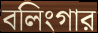
বলিংগার